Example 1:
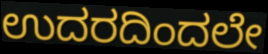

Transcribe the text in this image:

ಉದರದಿಂದಲೇ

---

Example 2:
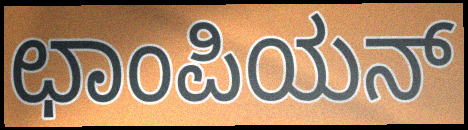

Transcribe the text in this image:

ಛಾಂಪಿಯನ್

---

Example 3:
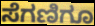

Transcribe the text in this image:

ಸೆಗಣಿಗೂ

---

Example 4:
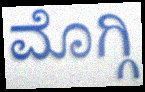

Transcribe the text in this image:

ಮೊಗ್ಗಿ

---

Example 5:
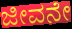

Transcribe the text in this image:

ಜೀವನೇ